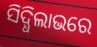
ସିଦ୍ଧିଲାଭରେ